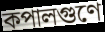
কপালগুণে